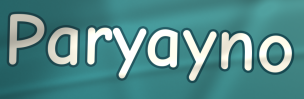
Paryayno